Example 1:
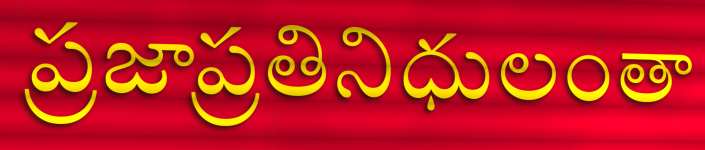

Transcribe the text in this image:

ప్రజాప్రతినిధులంతా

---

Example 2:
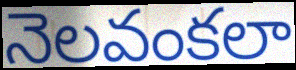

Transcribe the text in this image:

నెలవంకలా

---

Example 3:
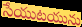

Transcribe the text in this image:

సేయుటయును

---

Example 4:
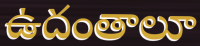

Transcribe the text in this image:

ఉదంతాలూ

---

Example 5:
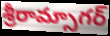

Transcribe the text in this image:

శ్రీరామ్సాగర్